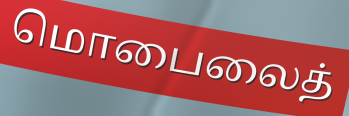
மொபைலைத்